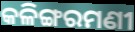
କଳିଙ୍ଗରମଣୀ